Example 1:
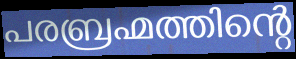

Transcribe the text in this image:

പരബ്രഹ്മത്തിന്റെ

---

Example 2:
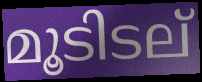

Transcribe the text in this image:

മൂടിടല്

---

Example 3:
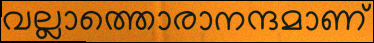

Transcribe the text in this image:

വല്ലാത്തൊരാനന്ദമാണ്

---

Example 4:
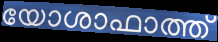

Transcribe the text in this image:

യോശാഫാത്ത്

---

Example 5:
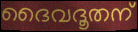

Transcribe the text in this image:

ദൈവദൂതന്